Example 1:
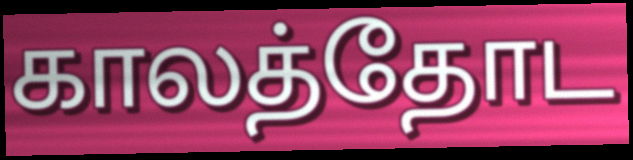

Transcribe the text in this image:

காலத்தோட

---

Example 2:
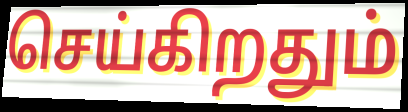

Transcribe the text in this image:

செய்கிறதும்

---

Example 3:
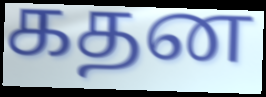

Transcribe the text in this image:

கதன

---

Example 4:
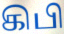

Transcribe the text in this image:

கிபி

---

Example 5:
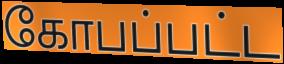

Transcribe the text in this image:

கோபப்பட்ட